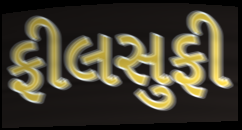
ફીલસુફી